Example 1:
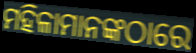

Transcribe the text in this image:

ମହିଳାମାନଙ୍କଠାରେ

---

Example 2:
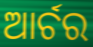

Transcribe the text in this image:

ଆର୍ଚର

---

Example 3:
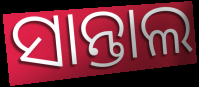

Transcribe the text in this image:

ସାନ୍ତାଲ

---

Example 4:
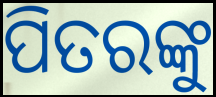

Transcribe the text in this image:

ପିତରଙ୍କୁ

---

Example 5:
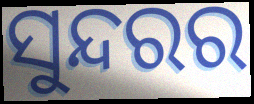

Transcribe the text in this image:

ସୁନ୍ଦରର